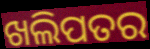
ଖଲିପତର